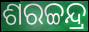
ଶରଚ୍ଚନ୍ଦ୍ର